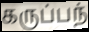
கருப்பந்